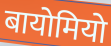
बायोमियो